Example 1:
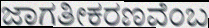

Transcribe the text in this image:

ಜಾಗತೀಕರಣವೆಂಬ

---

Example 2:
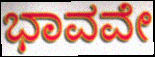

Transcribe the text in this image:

ಭಾವವೇ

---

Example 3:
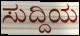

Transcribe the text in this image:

ಸುದ್ದಿಯ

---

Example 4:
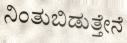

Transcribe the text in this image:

ನಿಂತುಬಿಡುತ್ತೇನೆ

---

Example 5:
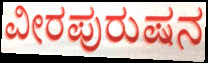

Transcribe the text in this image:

ವೀರಪುರುಷನ